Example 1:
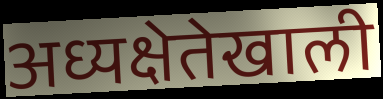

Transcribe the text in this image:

अध्यक्षेतेखाली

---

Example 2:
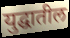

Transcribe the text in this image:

युद्घातील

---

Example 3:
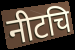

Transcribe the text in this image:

नीटचि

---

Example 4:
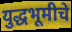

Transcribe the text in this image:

युद्धभूमीचे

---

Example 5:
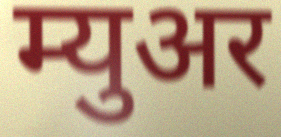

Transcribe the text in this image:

म्युअर